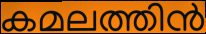
കമലത്തിൻ